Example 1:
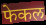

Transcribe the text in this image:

फेकल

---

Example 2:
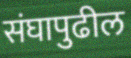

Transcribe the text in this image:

संघापुढील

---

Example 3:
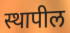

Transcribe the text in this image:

स्थापील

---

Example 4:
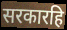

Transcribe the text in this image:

सरकारहि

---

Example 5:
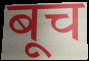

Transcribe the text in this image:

बूच